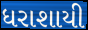
ધરાશાયી